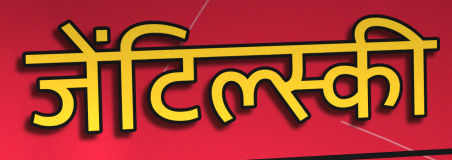
जेंटिल्स्की